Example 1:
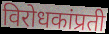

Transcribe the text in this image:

विरोधकांप्रती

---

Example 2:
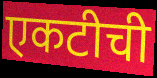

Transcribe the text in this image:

एकटीची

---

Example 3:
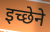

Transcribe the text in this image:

इच्छेने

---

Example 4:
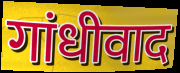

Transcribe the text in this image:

गांधीवाद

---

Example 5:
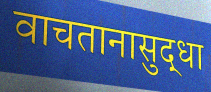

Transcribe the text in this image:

वाचतानासुद्धा